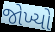
જોખ્યો